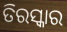
ତିରସ୍କାର